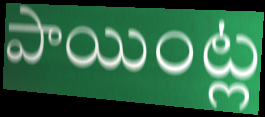
పాయింట్ల